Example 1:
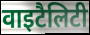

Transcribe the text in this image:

वाइटैलिटी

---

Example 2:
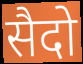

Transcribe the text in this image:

सैदो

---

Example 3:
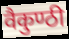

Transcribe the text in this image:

वैकुण्ठी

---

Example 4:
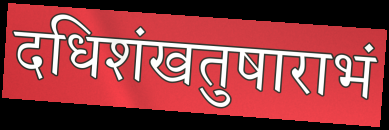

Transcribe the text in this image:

दधिशंखतुषाराभं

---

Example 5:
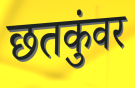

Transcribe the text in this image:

छतकुंवर